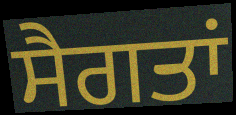
ਸੈਗਤਾਂ